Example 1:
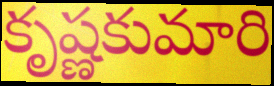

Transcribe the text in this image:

కృష్ణకుమారి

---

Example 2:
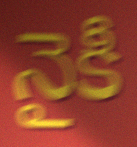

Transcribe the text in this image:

నైకీ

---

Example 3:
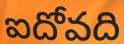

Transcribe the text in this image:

ఐదోవది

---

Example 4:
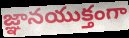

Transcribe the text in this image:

జ్ఞానయుక్తంగా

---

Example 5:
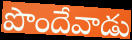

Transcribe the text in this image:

పొందేవాడు